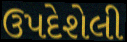
ઉપદેશેલી